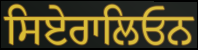
ਸਿਏਰਾਲਿਓਨ